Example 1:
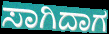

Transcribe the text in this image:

ಸಾಗಿದಾಗ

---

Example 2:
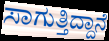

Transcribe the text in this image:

ಸಾಗುತ್ತಿದ್ದಾನೆ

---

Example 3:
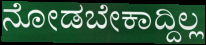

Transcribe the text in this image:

ನೋಡಬೇಕಾದ್ದಿಲ್ಲ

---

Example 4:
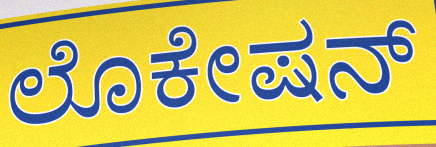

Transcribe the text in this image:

ಲೊಕೇಷನ್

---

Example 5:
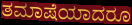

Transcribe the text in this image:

ತಮಾಷೆಯಾದರೂ